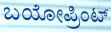
ಬಯೋಪ್ರಿಂಟ್